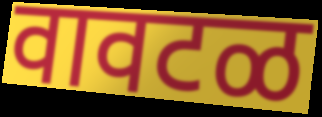
वावटळ